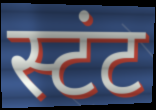
स्टंट